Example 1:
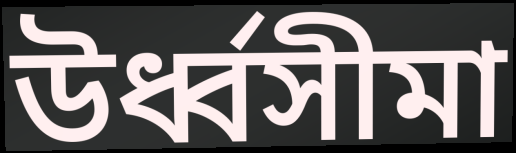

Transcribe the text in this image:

উর্ধ্বসীমা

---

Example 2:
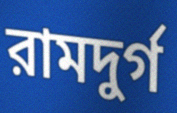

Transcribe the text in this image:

রামদুর্গ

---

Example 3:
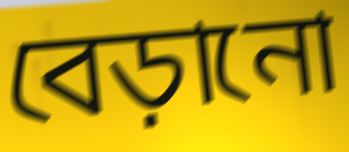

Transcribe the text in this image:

বেড়ানো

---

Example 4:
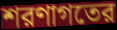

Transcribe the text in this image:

শরণাগতের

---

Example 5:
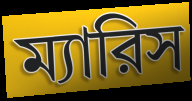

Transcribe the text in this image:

ম্যারিস